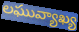
లఘువ్యాఖ్య